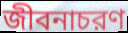
জীবনাচরণ